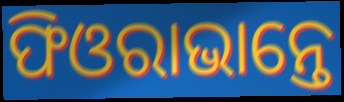
ଫିଓରାଭାନ୍ତେ